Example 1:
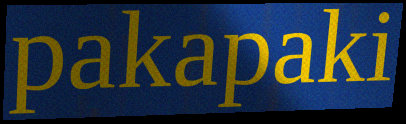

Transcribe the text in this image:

pakapaki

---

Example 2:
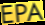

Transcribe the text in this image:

EPA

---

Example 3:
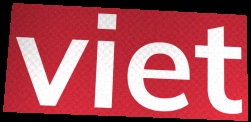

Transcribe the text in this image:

viet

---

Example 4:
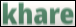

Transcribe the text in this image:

khare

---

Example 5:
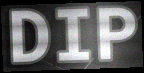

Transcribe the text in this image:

DIP